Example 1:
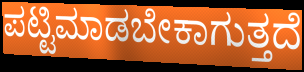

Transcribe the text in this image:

ಪಟ್ಟಿಮಾಡಬೇಕಾಗುತ್ತದೆ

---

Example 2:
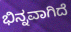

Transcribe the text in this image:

ಭಿನ್ನವಾಗಿದೆ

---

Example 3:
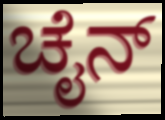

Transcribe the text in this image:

ಚೈನ್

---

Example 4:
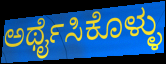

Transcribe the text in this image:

ಅರ್ಥೈಸಿಕೊಳ್ಳು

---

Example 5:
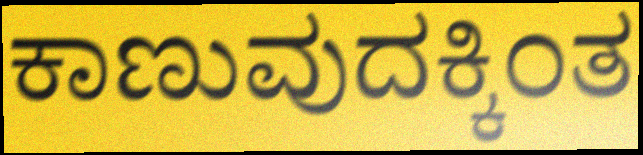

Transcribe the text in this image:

ಕಾಣುವುದಕ್ಕಿಂತ